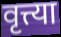
वृत्त्या